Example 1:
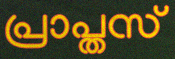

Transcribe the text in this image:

പ്രാപ്തസ്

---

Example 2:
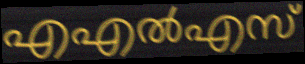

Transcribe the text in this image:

എഎൽഎസ്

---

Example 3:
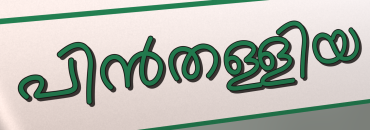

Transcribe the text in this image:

പിൻതള്ളിയ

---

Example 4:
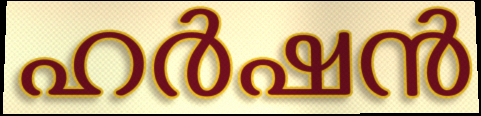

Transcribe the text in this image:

ഹർഷൻ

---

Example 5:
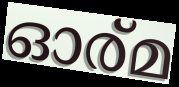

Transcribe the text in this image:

ഓര്മ